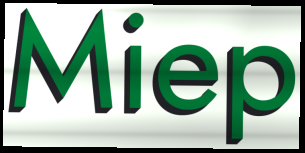
Miep